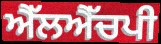
ਐੱਲਐੱਚਪੀ